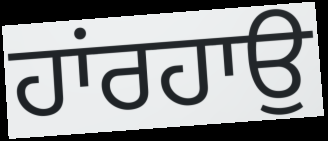
ਹਾਂਰਹਾਉ